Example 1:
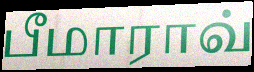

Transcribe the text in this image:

பீமாராவ்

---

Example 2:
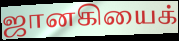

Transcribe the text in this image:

ஜானகியைக்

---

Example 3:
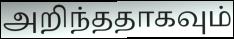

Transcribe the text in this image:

அறிந்ததாகவும்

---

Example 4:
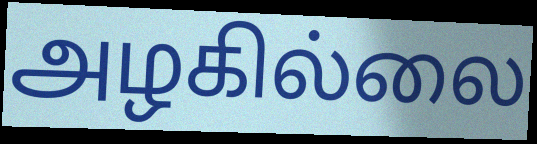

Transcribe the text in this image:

அழகில்லை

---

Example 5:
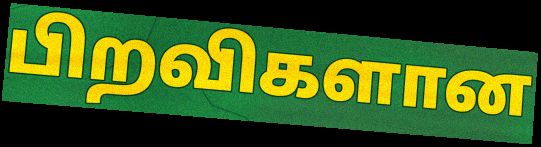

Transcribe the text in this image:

பிறவிகளான